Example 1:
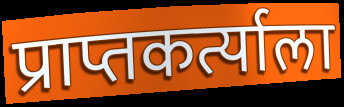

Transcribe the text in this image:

प्राप्तकर्त्याला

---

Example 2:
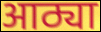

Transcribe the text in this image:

आठ्या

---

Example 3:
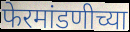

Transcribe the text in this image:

फेरमांडणीच्या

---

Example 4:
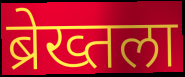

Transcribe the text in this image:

ब्रेख्तला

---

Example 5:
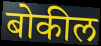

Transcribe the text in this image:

बोकील